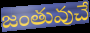
జంతువుచే